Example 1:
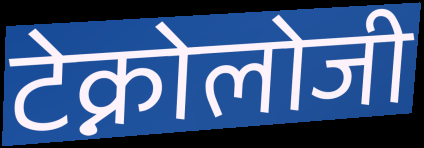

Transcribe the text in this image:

टेक्नोलोजी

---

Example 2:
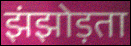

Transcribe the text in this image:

झंझोड़ता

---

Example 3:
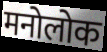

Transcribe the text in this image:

मनोलोक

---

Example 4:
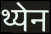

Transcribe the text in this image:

थ्येन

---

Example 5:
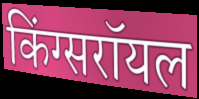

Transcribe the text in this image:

किंग्सरॉयल